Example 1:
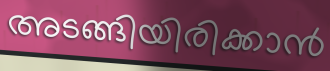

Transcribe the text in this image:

അടങ്ങിയിരിക്കാൻ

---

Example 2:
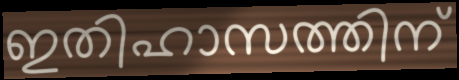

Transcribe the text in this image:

ഇതിഹാസത്തിന്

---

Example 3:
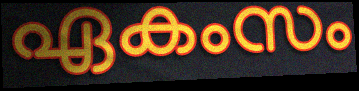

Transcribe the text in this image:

ഏകംസം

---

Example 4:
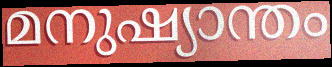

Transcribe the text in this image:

മനുഷ്യാന്തം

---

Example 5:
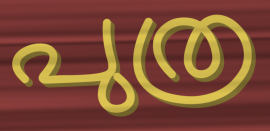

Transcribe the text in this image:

പുത്ര